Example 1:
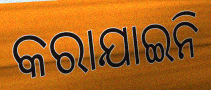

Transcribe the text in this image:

କରାଯାଇନି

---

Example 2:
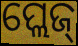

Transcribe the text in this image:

ପ୍ଲେଜ୍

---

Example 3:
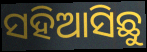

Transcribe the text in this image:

ସହିଆସିଛୁ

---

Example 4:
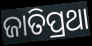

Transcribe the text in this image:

ଜାତିପ୍ରଥା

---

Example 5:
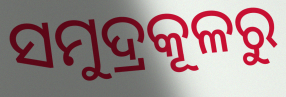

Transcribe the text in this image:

ସମୁଦ୍ରକୂଳରୁ